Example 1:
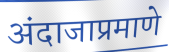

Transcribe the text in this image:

अंदाजाप्रमाणे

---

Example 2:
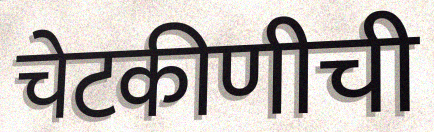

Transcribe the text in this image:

चेटकीणीची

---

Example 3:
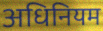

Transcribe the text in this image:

अधिनियम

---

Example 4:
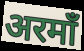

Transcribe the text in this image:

अरमाँ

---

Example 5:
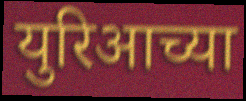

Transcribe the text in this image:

युरिआच्या